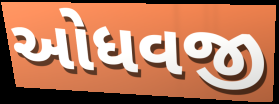
ઓધવજી